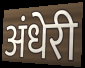
अंधेरी